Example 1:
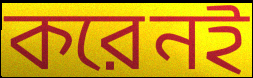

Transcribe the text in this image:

করেনই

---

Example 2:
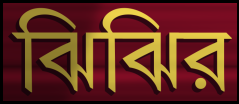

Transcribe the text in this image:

ঝিঝির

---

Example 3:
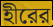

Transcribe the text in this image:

হীরের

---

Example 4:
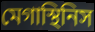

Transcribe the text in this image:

মেগাস্থিনিস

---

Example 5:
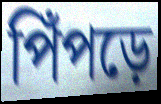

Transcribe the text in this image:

পিঁপড়ে